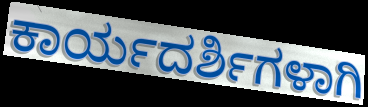
ಕಾರ್ಯದರ್ಶಿಗಳಾಗಿ